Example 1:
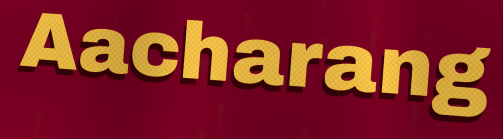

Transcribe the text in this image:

Aacharang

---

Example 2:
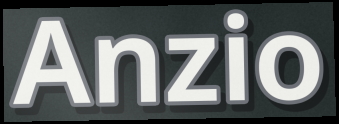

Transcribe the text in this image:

Anzio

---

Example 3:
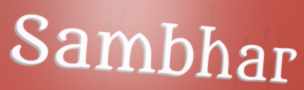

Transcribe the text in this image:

Sambhar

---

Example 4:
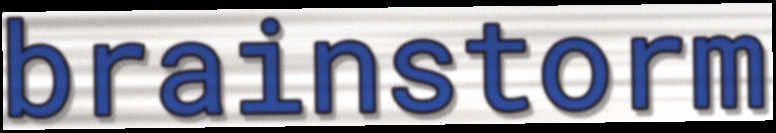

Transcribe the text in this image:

brainstorm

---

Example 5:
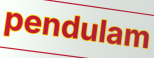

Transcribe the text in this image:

pendulam